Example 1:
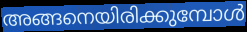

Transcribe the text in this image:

അങ്ങനെയിരിക്കുമ്പോൾ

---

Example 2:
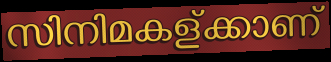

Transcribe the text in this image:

സിനിമകള്ക്കാണ്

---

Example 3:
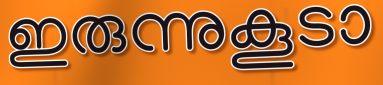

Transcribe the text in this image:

ഇരുന്നുകൂടാ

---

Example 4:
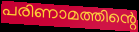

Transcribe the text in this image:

പരിണാമത്തിന്റെ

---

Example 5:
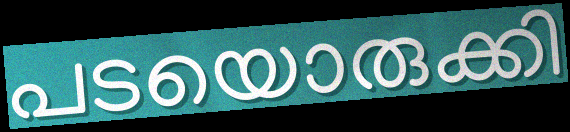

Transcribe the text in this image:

പടയൊരുക്കി